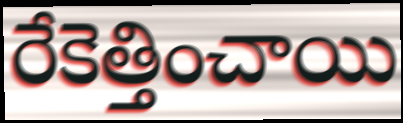
రేకెత్తించాయి